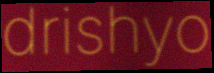
drishyo